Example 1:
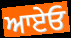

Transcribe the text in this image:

ਆਏਓ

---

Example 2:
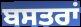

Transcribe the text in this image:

ਬਸਤਰਾਂ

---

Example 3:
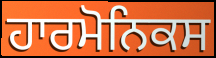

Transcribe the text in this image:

ਹਾਰਮੋਨਿਕਸ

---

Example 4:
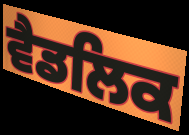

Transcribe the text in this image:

ਵੈਡਲਿਕ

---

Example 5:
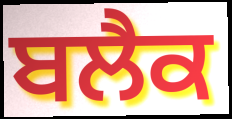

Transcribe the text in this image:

ਬਲੈਕ